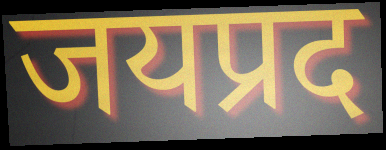
जयप्रद